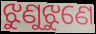
ଝୁଣୁଝୁଣେ